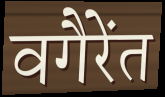
वगैरेंत